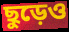
ছুড়েও